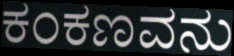
ಕಂಕಣವನು